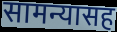
सामन्यासह